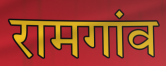
रामगांव